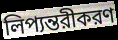
লিপ্যন্তরীকরণ